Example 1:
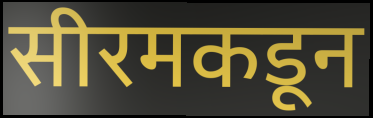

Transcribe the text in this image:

सीरमकडून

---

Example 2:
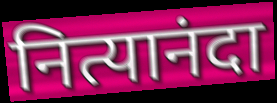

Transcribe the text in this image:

नित्यानंदा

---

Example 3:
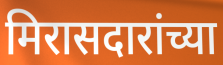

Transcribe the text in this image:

मिरासदारांच्या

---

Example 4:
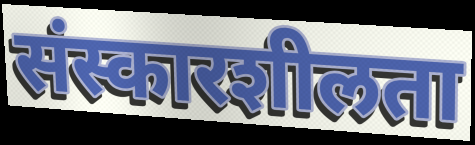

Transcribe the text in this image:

संस्कारशीलता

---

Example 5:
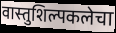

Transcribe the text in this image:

वास्तुशिल्पकलेचा